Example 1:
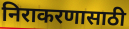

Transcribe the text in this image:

निराकरणासाठी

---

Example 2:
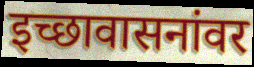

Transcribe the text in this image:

इच्छावासनांवर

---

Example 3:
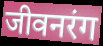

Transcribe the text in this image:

जीवनरंग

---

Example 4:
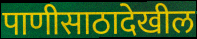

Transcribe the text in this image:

पाणीसाठादेखील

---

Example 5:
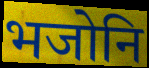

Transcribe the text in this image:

भजोनि